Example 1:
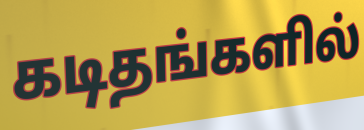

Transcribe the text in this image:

கடிதங்களில்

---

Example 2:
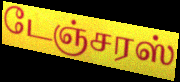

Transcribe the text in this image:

டேஞ்சரஸ்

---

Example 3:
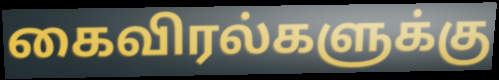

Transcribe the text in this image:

கைவிரல்களுக்கு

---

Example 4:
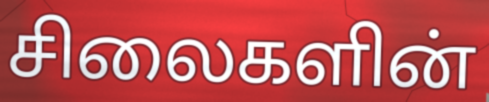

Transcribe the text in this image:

சிலைகளின்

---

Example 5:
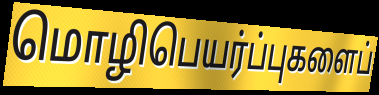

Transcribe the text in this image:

மொழிபெயர்ப்புகளைப்